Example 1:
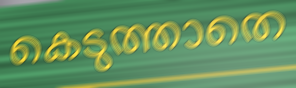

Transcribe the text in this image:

കെടുത്താതെ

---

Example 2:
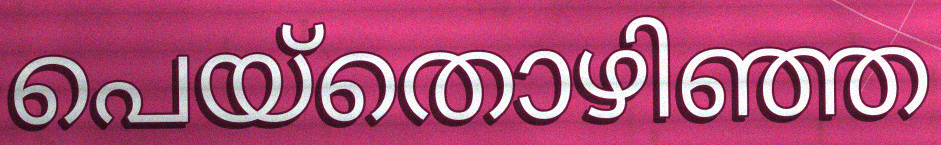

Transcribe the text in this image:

പെയ്തൊഴിഞ്ഞ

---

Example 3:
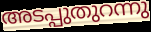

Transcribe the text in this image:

അടപ്പുതുറന്നു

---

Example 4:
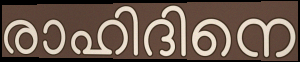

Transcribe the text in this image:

രാഹിദിനെ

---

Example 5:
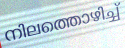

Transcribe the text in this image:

നിലത്തൊഴിച്ച്